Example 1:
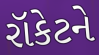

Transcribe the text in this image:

રૉકેટને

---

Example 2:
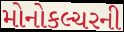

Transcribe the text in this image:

મોનોકલ્ચરની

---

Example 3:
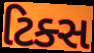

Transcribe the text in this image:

ટિક્સ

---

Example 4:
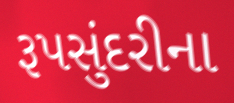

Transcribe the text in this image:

રૂપસુંદરીના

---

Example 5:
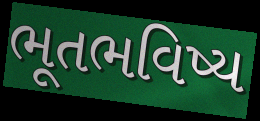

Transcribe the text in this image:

ભૂતભવિષ્ય